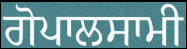
ਗੋਪਾਲਸਾਮੀ